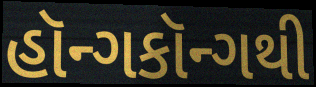
હૉન્ગકૉન્ગથી